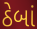
ઠેબાં